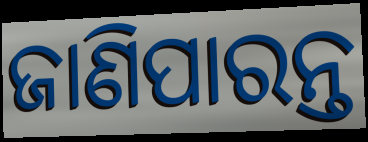
ଜାଣିପାରନ୍ତ